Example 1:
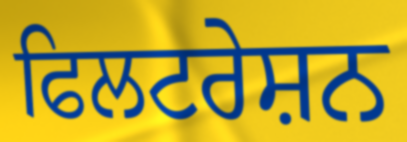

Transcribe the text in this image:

ਫਿਲਟਰੇਸ਼ਨ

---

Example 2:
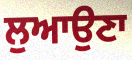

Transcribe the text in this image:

ਲੁਆਉਣਾ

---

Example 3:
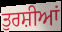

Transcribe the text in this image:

ਤੁਰਸ਼ੀਆਂ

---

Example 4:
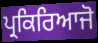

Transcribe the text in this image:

ਪ੍ਰਕਿਰਿਆਜੋ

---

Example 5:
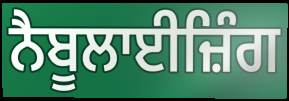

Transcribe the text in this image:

ਨੈਬੂਲਾਈਜ਼ਿੰਗ